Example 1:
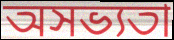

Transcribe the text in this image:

অসভ্যতা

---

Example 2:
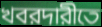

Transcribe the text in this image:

খবরদারীতে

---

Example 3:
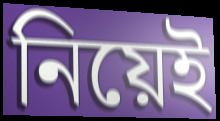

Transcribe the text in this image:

নিয়েই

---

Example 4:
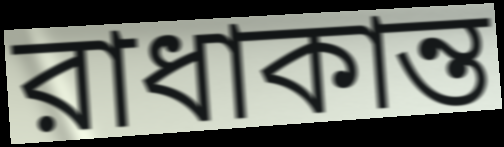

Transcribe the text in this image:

রাধাকান্ত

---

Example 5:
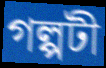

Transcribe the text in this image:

গল্পটী